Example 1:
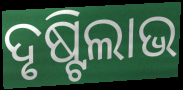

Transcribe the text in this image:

ଦୃଷ୍ଟିଲାଭ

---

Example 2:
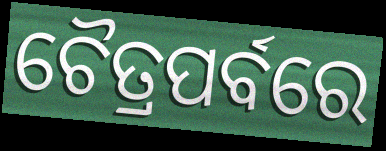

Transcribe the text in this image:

ଚୈତ୍ରପର୍ବରେ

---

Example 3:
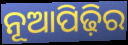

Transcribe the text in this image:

ନୂଆପିଢ଼ିର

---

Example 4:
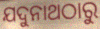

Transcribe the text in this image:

ଯଦୁନାଥଠାରୁ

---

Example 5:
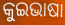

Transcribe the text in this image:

କୁଇଭାଷା